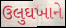
ઉલુઘખાને